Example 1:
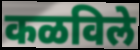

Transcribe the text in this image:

कळविले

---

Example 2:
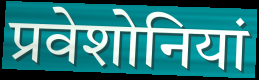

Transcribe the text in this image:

प्रवेशोनियां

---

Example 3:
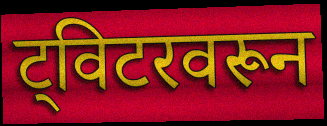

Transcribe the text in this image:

ट्विटरवरून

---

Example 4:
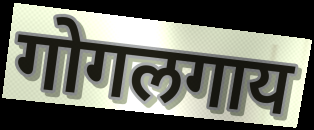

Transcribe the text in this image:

गोगलगाय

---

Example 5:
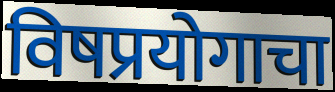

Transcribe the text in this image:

विषप्रयोगाचा